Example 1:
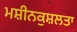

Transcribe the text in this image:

ਮਸ਼ੀਨਕੁਸ਼ਲਤਾ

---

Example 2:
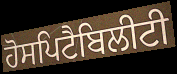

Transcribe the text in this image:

ਹੋਸਪਿਟੈਬਿਲੀਟੀ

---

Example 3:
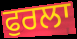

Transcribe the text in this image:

ਫੁਰਲਾ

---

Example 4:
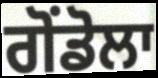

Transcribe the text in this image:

ਗੋਂਡੋਲਾ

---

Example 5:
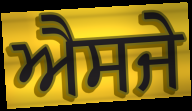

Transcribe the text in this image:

ਐਸਜੇ